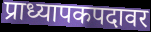
प्राध्यापकपदावर